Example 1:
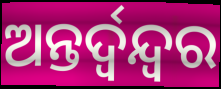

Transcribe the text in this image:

ଅନ୍ତର୍ଦ୍ୱନ୍ଦ୍ୱର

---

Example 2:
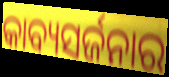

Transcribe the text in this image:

କାବ୍ୟସର୍ଜନାର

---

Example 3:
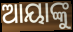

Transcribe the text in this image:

ଆୟାଙ୍କୁ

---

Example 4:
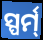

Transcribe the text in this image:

ସ୍ପର୍ମ୍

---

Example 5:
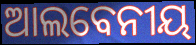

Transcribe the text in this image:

ଆଲବେନୀୟ